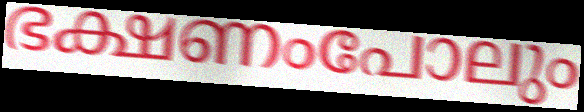
ഭക്ഷണംപോലും